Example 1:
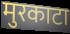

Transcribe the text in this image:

मुरकाटा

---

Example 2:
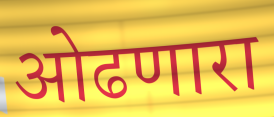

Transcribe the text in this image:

ओढणारा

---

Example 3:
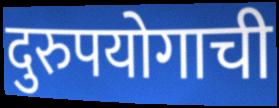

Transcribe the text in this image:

दुरुपयोगाची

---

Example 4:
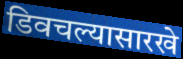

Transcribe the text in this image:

डिवचल्यासारखे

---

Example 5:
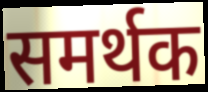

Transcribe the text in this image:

समर्थक